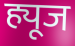
ह्यूज